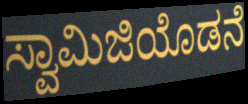
ಸ್ವಾಮಿಜಿಯೊಡನೆ